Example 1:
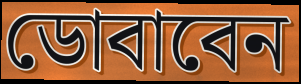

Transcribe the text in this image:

ডোবাবেন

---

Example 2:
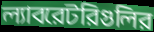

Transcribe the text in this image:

ল্যাবরেটরিগুলির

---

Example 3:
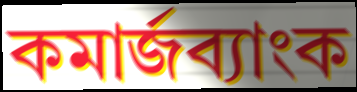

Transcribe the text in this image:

কমার্জব্যাংক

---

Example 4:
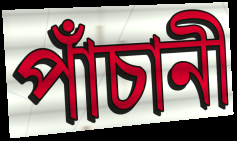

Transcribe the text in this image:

পাঁচানী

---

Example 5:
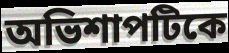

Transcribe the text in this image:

অভিশাপটিকে